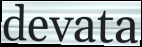
devata